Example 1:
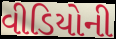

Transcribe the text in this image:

વીડિયોની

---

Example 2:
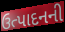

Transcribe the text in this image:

ઉત્પાદનની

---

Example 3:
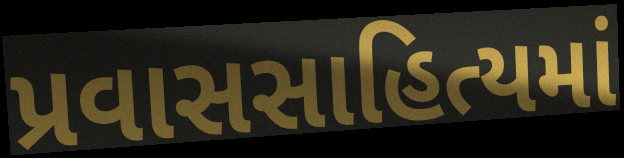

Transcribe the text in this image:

પ્રવાસસાહિત્યમાં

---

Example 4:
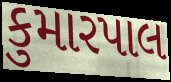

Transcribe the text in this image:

કુમારપાલ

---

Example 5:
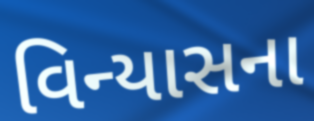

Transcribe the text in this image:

વિન્યાસના